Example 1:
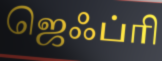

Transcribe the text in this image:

ஜெஃப்ரி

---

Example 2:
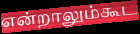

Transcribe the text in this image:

என்றாலும்கூட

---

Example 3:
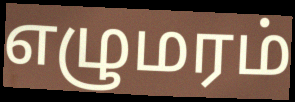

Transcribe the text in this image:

எழுமரம்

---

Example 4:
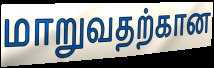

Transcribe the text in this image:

மாறுவதற்கான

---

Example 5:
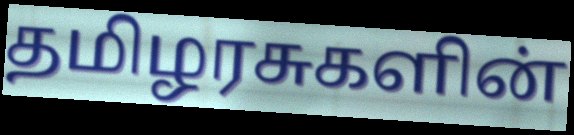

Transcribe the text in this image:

தமிழரசுகளின்